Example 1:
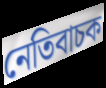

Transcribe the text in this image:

নেতিবাচক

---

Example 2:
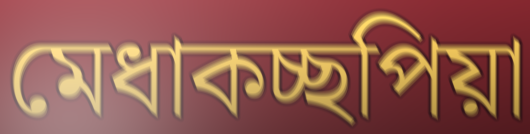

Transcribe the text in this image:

মেধাকচ্ছপিয়া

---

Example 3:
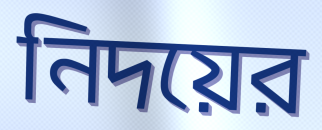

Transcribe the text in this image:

নিদয়ের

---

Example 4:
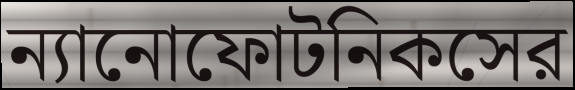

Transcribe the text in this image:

ন্যানোফোটনিকসের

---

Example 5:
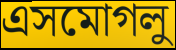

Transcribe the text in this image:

এসমোগলু